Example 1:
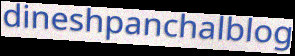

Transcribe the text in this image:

dineshpanchalblog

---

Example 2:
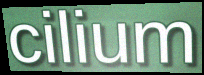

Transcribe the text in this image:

cilium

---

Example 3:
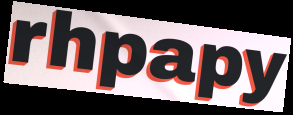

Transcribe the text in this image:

rhpapy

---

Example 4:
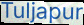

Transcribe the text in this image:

Tuljapur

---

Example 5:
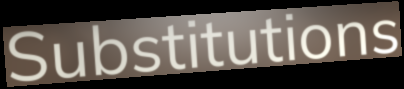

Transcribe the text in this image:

Substitutions